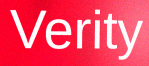
Verity